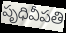
పృధివీపతి